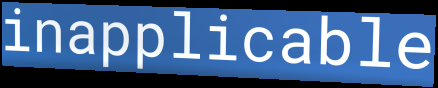
inapplicable